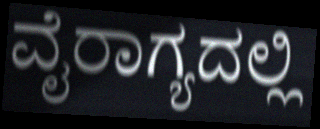
ವೈರಾಗ್ಯದಲ್ಲಿ